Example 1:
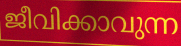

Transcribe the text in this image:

ജീവിക്കാവുന്ന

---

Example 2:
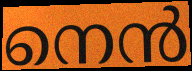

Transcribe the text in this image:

നെൻ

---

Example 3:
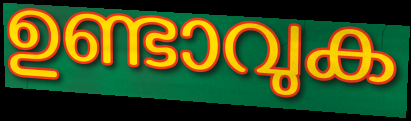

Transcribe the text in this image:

ഉണ്ടാവുക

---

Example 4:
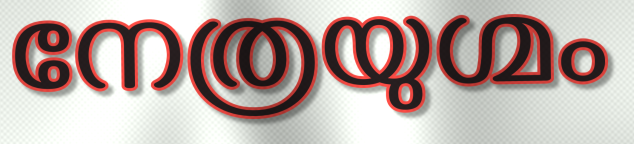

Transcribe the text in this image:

നേത്രയുഗ്മം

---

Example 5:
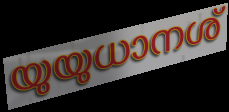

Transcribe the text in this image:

യുയുധാനശ്